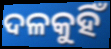
ଦଳକୁହିଁ